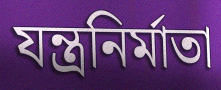
যন্ত্রনির্মাতা